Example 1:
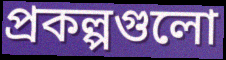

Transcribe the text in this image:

প্রকল্পগুলো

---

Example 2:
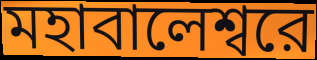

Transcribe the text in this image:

মহাবালেশ্বরে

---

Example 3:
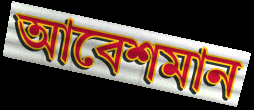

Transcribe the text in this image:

আবেশমান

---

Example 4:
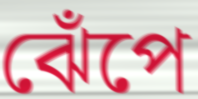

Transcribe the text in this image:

ঝেঁপে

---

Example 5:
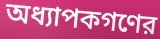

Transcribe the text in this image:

অধ্যাপকগণের